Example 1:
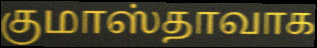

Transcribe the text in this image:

குமாஸ்தாவாக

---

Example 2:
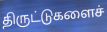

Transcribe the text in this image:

திருட்டுகளைச்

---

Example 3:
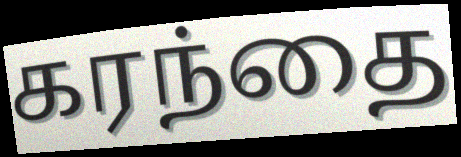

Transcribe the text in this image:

கரந்தை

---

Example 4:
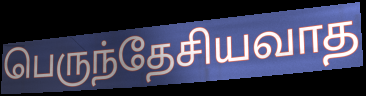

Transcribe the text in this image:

பெருந்தேசியவாத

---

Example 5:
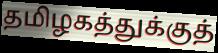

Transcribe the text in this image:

தமிழகத்துக்குத்